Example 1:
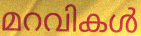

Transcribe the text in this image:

മറവികൾ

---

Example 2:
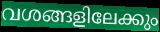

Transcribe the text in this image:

വശങ്ങളിലേക്കും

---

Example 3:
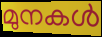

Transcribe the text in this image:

മുനകൾ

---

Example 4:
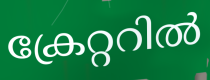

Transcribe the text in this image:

ക്രേറ്ററിൽ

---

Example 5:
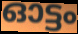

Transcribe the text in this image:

ഓട്ടം